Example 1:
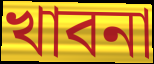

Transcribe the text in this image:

খাবনা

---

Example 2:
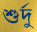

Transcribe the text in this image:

শুর্দু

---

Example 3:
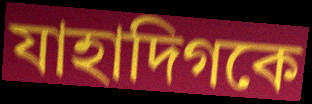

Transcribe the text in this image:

যাহাদিগকে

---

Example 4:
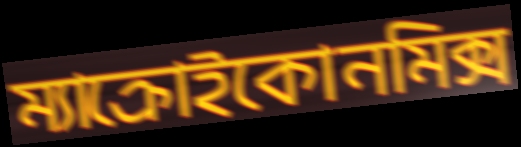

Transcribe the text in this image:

ম্যাক্রোইকোনমিক্স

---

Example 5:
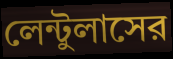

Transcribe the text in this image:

লেন্টুলাসের